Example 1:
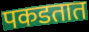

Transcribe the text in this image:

पकडतात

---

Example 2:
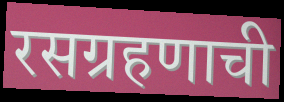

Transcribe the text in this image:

रसग्रहणाची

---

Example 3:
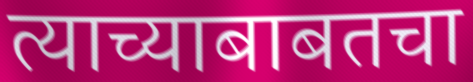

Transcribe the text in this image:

त्याच्याबाबतचा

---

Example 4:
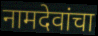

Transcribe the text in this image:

नामदेवांचा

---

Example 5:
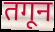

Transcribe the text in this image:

तगून